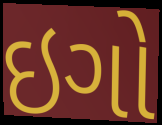
ઇગો